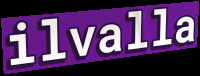
ilvalla